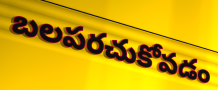
బలపరచుకోవడం